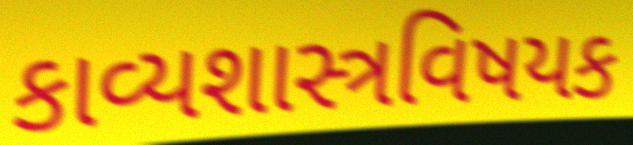
કાવ્યશાસ્ત્રવિષયક